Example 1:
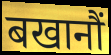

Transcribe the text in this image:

बखानौं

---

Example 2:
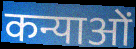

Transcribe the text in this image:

कन्‍याओं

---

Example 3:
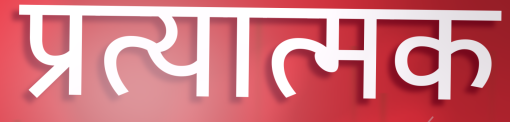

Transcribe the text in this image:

प्रत्यात्मक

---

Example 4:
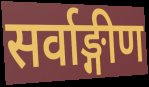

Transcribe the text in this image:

सर्वाङ्गीण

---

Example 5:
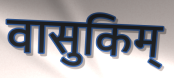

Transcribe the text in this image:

वासुकिम्